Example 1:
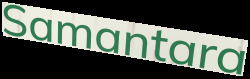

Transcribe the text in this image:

Samantara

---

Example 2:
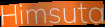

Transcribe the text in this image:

Himsuta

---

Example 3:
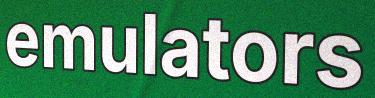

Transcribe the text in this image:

emulators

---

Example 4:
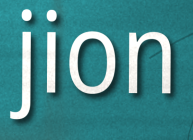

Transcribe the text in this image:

jion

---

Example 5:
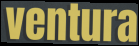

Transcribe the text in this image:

ventura